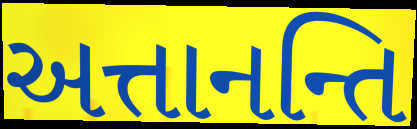
અત્તાનન્તિ